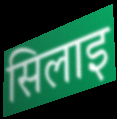
सिलाइ